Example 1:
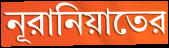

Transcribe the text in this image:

নূরানিয়াতের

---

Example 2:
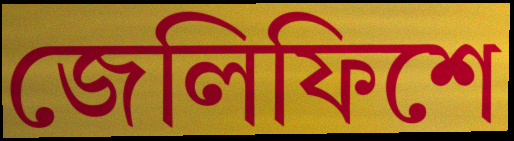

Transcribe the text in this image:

জেলিফিশে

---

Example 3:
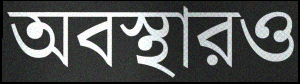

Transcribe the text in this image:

অবস্থারও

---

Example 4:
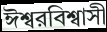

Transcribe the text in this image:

ঈশ্বরবিশ্বাসী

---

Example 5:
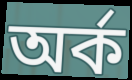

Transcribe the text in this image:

অর্ক